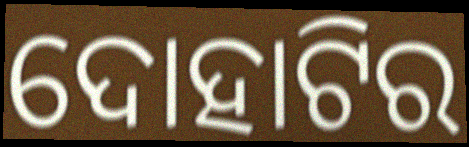
ଦୋହାଟିର